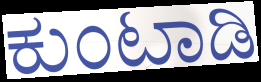
ಕುಂಟಾಡಿ